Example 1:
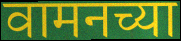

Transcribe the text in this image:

वामनच्या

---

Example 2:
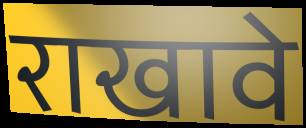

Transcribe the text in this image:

राखावे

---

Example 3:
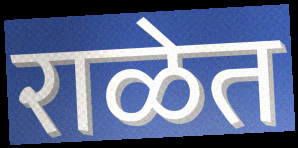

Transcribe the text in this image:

राळेत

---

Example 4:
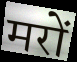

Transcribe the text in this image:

मरों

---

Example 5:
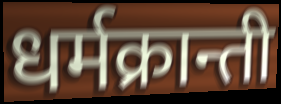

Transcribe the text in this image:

धर्मक्रान्ती